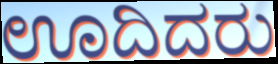
ಊದಿದರು